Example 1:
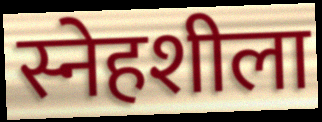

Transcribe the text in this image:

स्नेहशीला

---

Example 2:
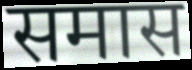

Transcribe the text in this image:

समास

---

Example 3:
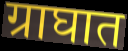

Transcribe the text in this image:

ग्राघात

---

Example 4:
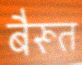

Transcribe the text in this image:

बैरूत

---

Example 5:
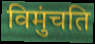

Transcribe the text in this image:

विमुंचति